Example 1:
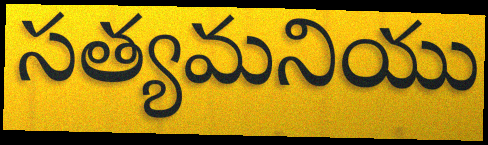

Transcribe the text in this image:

సత్యమనియు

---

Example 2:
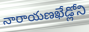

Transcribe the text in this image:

నారాయణఖేడ్లోని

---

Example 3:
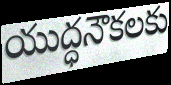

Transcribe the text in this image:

యుద్ధనౌకలకు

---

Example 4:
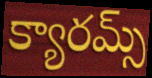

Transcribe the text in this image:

క్యారమ్స్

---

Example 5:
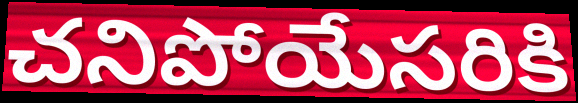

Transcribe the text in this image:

చనిపోయేసరికి